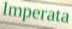
Imperata